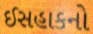
ઈસહાકનો